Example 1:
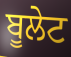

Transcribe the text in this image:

ਬੂਲੇਟ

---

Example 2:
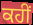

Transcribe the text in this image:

ਕਹੀਂ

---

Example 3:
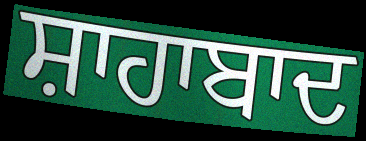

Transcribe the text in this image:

ਸ਼ਾਹਾਬਾਦ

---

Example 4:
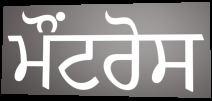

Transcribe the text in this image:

ਮੌਂਟਰੋਸ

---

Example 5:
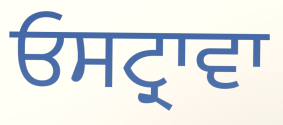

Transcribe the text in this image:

ਓਸਟ੍ਰਾਵਾ